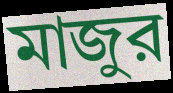
মাজুর